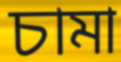
চামা